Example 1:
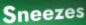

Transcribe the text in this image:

Sneezes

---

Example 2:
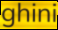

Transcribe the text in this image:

ghini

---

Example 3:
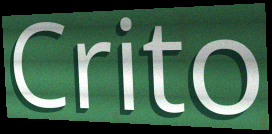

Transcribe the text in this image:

Crito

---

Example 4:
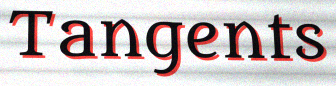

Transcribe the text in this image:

Tangents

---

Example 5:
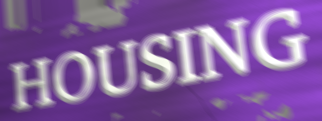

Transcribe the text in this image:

HOUSING